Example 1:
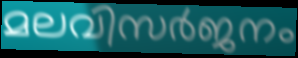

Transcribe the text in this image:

മലവിസർജനം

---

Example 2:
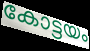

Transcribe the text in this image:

കോട്ടയം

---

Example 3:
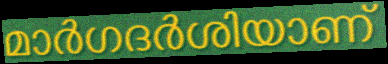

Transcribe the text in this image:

മാർഗദർശിയാണ്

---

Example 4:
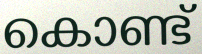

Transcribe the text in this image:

കൊണ്ട്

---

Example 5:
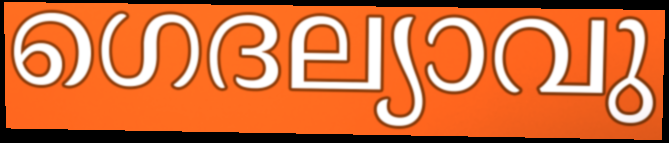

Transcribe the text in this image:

ഗെദല്യാവു